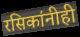
रसिकांनीही